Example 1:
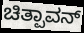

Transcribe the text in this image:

ಚಿತ್ಪಾವನ್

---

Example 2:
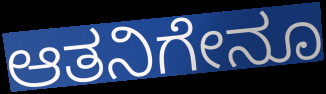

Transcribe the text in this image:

ಆತನಿಗೇನೂ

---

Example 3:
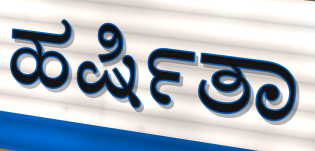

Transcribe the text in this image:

ಹರ್ಷಿತಾ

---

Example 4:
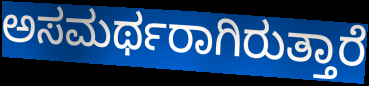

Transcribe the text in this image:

ಅಸಮರ್ಥರಾಗಿರುತ್ತಾರೆ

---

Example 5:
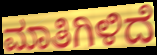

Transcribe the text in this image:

ಮಾತಿಗಿಳಿದೆ